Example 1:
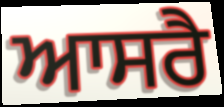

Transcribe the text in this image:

ਆਸਰੈ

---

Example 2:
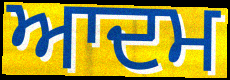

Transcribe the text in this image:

ਆਦਮ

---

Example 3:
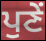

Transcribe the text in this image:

ਪੁਣੇਂ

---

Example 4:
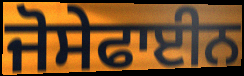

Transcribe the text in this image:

ਜੋਸੇਫਾਈਨ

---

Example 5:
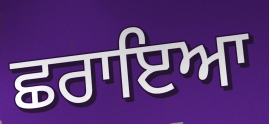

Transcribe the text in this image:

ਛਰਾਇਆ